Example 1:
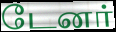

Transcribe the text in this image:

டேனர்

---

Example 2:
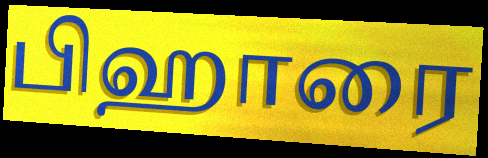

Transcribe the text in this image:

பிஹாரை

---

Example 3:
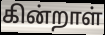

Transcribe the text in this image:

கின்றாள்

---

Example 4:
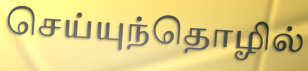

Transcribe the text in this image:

செய்யுந்தொழில்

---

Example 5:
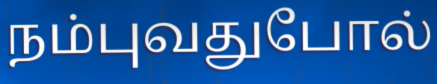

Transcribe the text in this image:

நம்புவதுபோல்